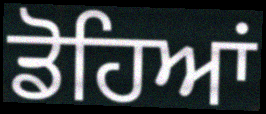
ਡੋਹਿਆਂ